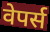
वेपर्स